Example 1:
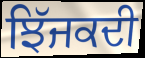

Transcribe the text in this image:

ਝਿੱਜਕਦੀ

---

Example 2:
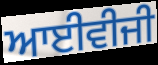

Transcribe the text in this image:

ਆਈਵੀਜੀ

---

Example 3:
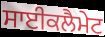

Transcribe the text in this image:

ਸਾਈਕਲੈਮੇਟ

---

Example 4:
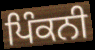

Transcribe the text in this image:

ਪਿੰਕਨੀ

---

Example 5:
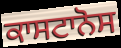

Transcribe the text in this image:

ਕਾਸਟਾਨੋਸ